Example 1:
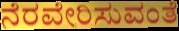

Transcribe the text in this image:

ನೆರವೇರಿಸುವಂತೆ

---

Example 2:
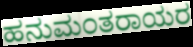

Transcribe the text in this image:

ಹನುಮಂತರಾಯರ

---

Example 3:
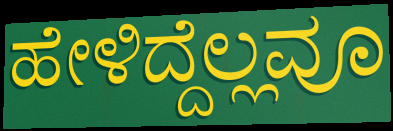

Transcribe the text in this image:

ಹೇಳಿದ್ದೆಲ್ಲವೂ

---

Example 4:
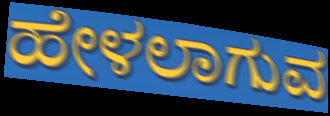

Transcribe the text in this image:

ಹೇಳಲಾಗುವ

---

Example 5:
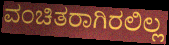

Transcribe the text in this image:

ವಂಚಿತರಾಗಿರಲಿಲ್ಲ